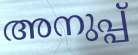
അനുപ്പ്